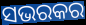
ସଭରକର